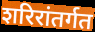
शरिरांतर्गत